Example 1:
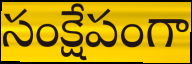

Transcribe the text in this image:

సంక్షేపంగా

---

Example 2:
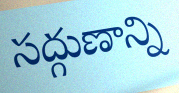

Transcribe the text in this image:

సద్గుణాన్ని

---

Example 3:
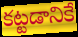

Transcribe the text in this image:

కట్టడానికే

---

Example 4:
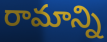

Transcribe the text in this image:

రామాన్ని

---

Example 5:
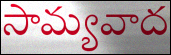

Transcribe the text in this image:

సామ్యవాద